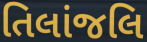
તિલાંજલિ